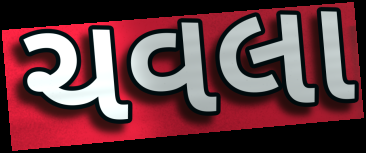
ચવલા